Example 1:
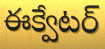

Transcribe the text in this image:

ఈక్వేటర్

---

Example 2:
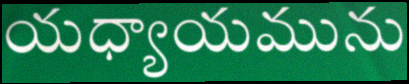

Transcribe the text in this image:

యధ్యాయమును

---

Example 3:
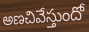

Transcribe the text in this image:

అణచివేస్తుందో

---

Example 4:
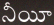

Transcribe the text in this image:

నీయీ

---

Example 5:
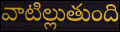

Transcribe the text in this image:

వాటిల్లుతుంది